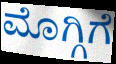
ಮೊಗ್ಗಿಗೆ